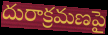
దురాక్రమణపై